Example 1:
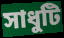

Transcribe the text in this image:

সাধুটি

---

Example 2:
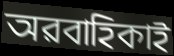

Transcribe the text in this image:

অৱবাহিকাই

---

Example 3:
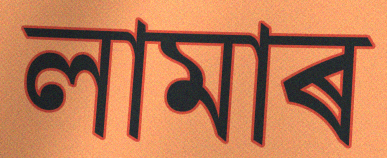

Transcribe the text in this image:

লামাৰ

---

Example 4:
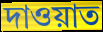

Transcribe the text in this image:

দাওয়াত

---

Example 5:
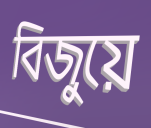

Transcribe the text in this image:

বিজুয়ে